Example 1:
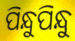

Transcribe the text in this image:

ପିନ୍ଧୁପିନ୍ଧୁ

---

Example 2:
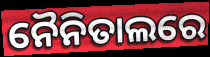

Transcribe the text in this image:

ନୈନିତାଲରେ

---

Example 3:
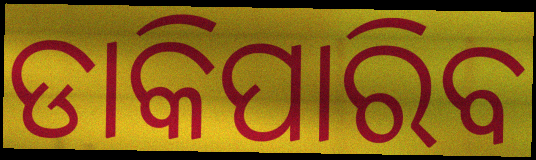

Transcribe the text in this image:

ଡାକିପାରିବ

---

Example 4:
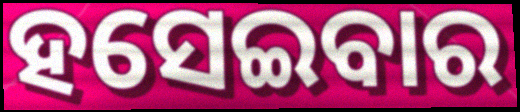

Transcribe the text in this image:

ହସେଇବାର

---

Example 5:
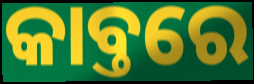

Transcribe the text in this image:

କାବ୍ତରେ